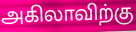
அகிலாவிற்கு